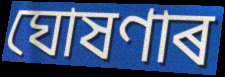
ঘোষণাৰ